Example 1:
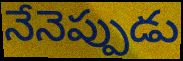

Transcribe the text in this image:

నేనెప్పుడు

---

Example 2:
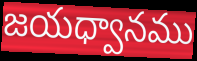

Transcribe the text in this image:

జయధ్వానము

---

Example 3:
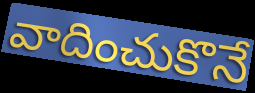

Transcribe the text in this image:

వాదించుకొనే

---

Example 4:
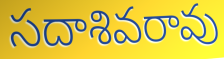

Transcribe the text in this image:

సదాశివరావు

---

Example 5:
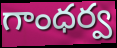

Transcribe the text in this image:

గాంధర్వ